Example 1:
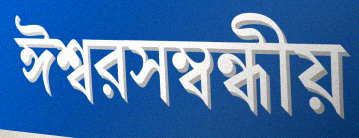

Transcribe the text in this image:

ঈশ্বরসম্বন্ধীয়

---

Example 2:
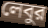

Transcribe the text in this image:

লেবুর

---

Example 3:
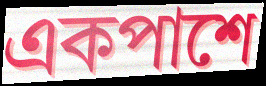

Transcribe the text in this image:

একপাশে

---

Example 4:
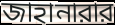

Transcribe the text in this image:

জাহানারার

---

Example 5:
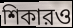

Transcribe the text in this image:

শিকারও